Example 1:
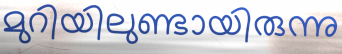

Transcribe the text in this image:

മുറിയിലുണ്ടായിരുന്നു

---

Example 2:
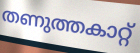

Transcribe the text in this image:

തണുത്തകാറ്റ്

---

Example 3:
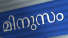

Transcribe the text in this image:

മിനുസം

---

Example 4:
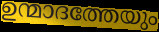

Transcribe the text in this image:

ഉന്മാദത്തേയും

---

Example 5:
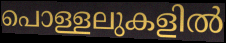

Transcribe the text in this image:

പൊള്ളലുകളിൽ